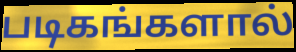
படிகங்களால்